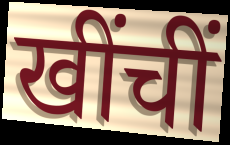
खींचीं